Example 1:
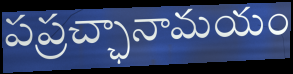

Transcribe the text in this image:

పప్రచ్ఛానామయం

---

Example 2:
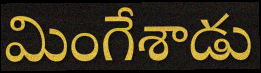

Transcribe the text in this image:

మింగేశాడు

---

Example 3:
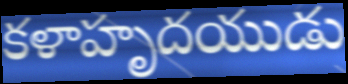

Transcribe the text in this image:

కళాహృదయుడు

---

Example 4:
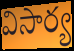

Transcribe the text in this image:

విసార్య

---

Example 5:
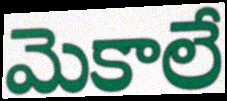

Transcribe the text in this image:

మెకాలే